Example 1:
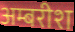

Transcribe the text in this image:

अम्बरीश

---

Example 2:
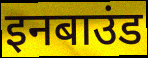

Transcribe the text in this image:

इनबाउंड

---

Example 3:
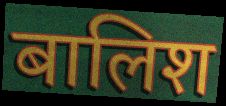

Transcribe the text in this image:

बालिश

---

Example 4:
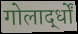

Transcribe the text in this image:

गोलार्द्धों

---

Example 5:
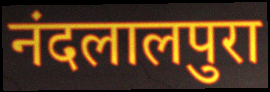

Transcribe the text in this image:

नंदलालपुरा